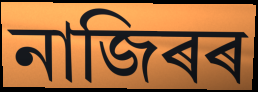
নাজিৰৰ